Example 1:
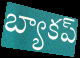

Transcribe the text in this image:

బ్యాకప్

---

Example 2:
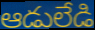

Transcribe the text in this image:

ఆడులేడి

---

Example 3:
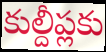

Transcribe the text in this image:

కుల్దీప్లకు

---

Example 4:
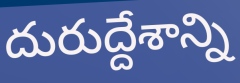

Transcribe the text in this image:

దురుద్దేశాన్ని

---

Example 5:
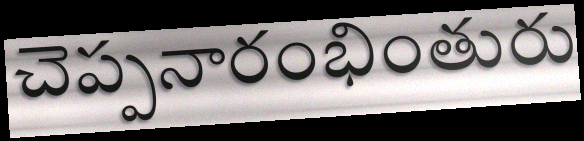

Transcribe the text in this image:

చెప్పనారంభింతురు